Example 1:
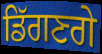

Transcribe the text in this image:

ਡਿੱਗਣਗੇ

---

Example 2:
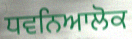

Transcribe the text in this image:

ਧਵਨਿਆਲੋਕ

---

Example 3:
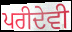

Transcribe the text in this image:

ਪਰੀਦੇਵੀ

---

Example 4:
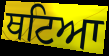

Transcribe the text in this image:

ਥਟਿਆ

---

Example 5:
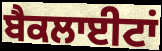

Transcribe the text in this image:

ਬੈਕਲਾਈਟਾਂ